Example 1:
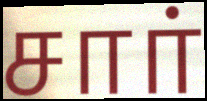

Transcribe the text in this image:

சார்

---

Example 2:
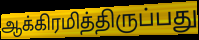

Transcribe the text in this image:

ஆக்கிரமித்திருப்பது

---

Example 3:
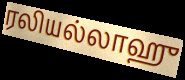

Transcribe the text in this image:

ரலியல்லாஹு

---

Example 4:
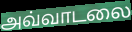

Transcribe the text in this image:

அவ்வாடலை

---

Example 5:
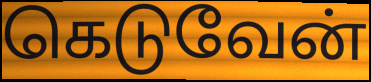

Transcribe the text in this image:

கெடுவேன்